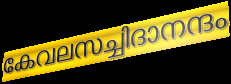
കേവലസച്ചിദാനന്ദം